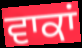
ਵਾਕਾਂ